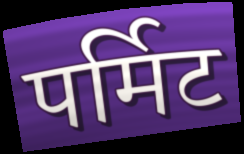
पर्मिट